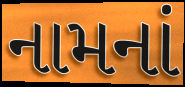
નામનાં